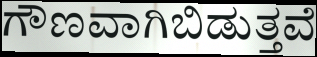
ಗೌಣವಾಗಿಬಿಡುತ್ತವೆ